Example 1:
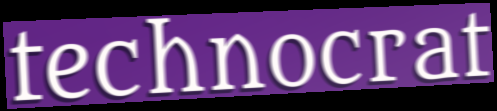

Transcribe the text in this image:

technocrat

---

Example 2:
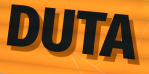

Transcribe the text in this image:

DUTA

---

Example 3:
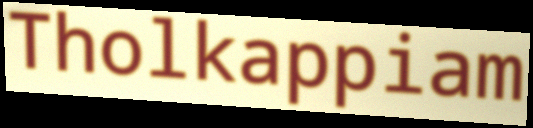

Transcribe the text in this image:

Tholkappiam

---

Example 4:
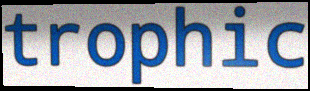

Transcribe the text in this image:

trophic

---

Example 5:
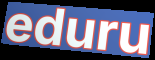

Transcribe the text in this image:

eduru